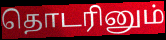
தொடரினும்